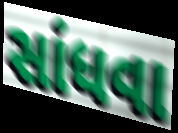
સાંધવા